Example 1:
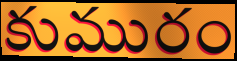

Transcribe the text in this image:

కుమురం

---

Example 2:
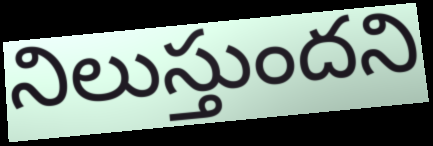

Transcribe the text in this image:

నిలుస్తుందని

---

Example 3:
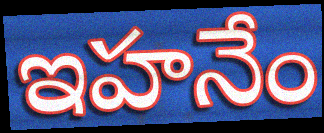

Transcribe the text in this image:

ఇహనేం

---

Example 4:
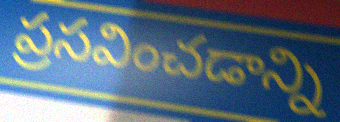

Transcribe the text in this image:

ప్రసవించడాన్ని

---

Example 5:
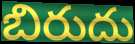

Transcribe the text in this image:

బిరుదు